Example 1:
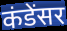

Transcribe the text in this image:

कंडेंसर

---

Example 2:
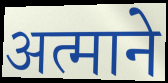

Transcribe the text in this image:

अत्माने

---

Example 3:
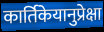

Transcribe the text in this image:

कार्तिकेयानुप्रेक्षा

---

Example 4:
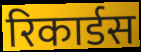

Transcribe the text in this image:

रिकार्डस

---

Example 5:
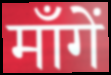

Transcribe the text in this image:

माँगें